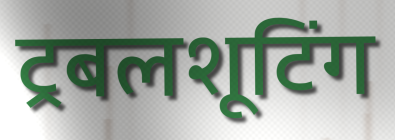
ट्रबलशूटिंग